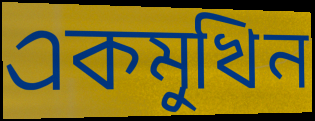
একমুখিন